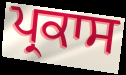
ਪ੍ਰਕਾਸ